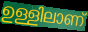
ഉള്ളിലാണ്